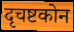
दृचष्टकोन